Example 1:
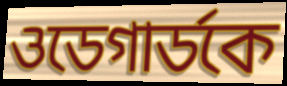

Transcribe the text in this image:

ওডেগার্ডকে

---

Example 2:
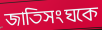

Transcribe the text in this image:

জাতিসংঘকে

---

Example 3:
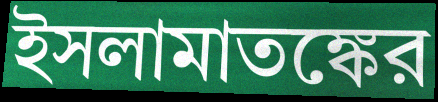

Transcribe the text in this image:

ইসলামাতঙ্কের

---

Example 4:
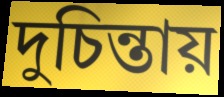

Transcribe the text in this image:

দুচিন্তায়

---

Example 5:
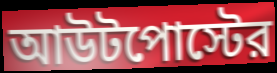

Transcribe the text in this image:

আউটপোস্টের